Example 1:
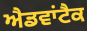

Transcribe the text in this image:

ਐਡਵਾਂਟੈਕ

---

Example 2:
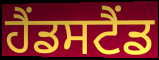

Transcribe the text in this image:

ਹੈਂਡਸਟੈਂਡ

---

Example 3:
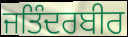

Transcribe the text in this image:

ਜਤਿੰਦਰਬੀਰ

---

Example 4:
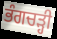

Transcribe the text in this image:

ਭੰਗਚੜ੍ਹੀ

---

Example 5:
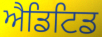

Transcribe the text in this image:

ਐਡਿਟਿਡ